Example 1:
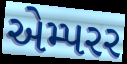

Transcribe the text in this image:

એમ્પરર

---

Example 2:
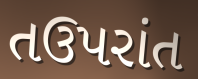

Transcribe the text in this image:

તઉપરાંત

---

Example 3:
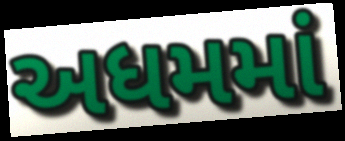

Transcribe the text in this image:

અધમમાં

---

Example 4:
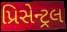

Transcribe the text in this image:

પ્રિસેન્ટ્રલ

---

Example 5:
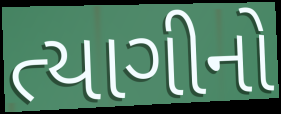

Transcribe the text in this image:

ત્યાગીનો